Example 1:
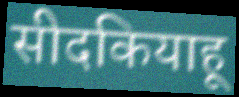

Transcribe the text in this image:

सीदकियाहू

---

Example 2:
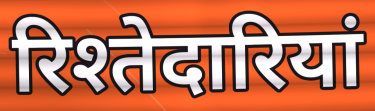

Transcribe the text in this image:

रिश्तेदारियां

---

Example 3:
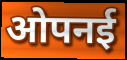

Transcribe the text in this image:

ओपनई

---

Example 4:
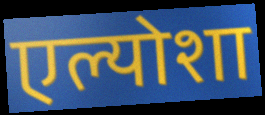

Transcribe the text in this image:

एल्योशा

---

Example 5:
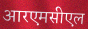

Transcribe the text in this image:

आरएमसीएल